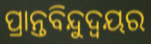
ପ୍ରାନ୍ତବିନ୍ଦୁଦ୍ଵୟର